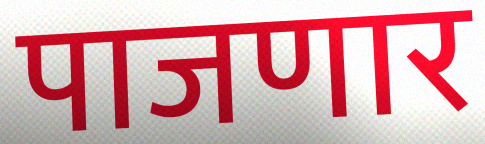
पाजणार